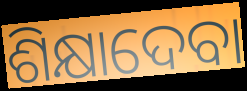
ଶିକ୍ଷାଦେବା